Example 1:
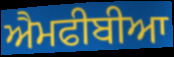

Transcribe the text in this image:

ਐਮਫੀਬੀਆ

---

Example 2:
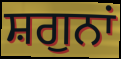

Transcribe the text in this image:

ਸ਼ਗੁਨਾਂ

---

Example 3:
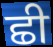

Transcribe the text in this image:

ਛੀ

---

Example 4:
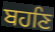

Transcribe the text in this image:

ਬਹਣਿ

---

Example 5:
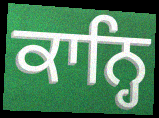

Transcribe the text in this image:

ਕਾਨ੍ਹਿ